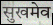
सुखमेव